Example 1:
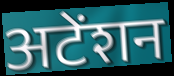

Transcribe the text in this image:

अटेंशन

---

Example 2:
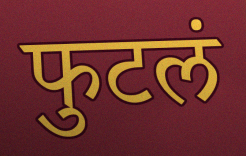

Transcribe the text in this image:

फुटलं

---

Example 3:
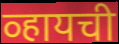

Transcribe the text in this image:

व्हायची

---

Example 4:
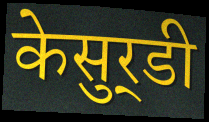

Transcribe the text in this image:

केसुर्डी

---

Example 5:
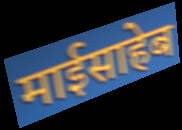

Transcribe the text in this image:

माईसाहेब